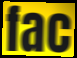
fac